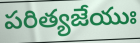
పరిత్యజేయుః